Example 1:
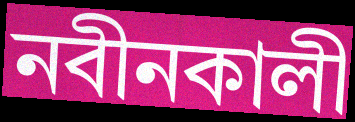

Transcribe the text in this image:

নবীনকালী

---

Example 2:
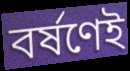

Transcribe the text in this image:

বর্ষণেই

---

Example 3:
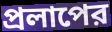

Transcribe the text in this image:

প্রলাপের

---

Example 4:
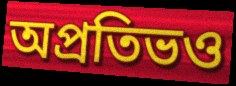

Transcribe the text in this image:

অপ্রতিভও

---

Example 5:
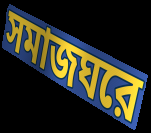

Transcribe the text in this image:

সমাজঘরে